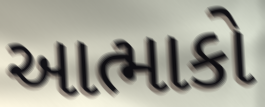
આત્માકો